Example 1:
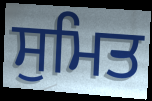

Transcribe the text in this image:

ਸੁਮਿਤ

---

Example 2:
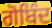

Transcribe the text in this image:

ਗੋਬਿੰਦ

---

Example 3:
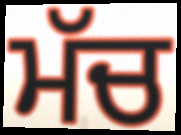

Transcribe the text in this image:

ਮੱਚ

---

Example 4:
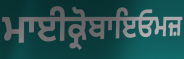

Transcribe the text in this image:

ਮਾਈਕ੍ਰੋਬਾਇਓਮਜ਼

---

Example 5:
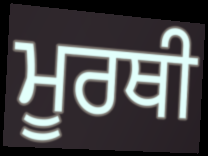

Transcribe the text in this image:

ਮੂਰਥੀ